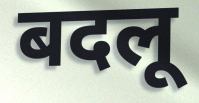
बदलू